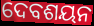
ଦେବଶୟନ